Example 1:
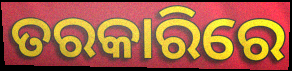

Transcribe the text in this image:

ତରକାରିରେ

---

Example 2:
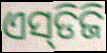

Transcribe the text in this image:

ଏସ୍‌ଡିଜି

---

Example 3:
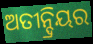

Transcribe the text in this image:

ଅତୀନ୍ଦ୍ରିୟର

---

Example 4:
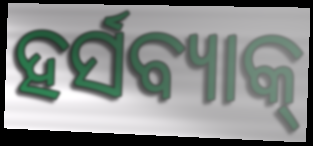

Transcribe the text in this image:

ହର୍ସବ୍ୟାକ୍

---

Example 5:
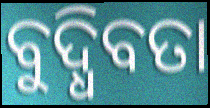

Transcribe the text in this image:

ବୁଦ୍ଧିବତା